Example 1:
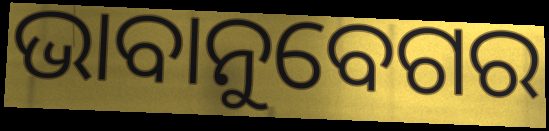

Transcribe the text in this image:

ଭାବାନୁବେଗର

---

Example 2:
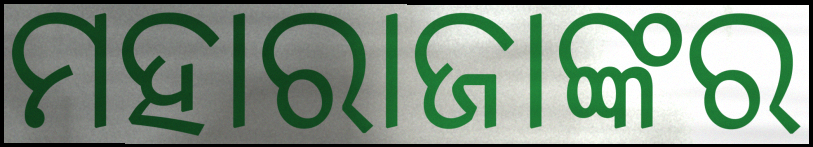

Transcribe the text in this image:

ମହାରାଜାଙ୍କର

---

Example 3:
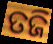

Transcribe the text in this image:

ତଜି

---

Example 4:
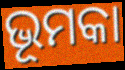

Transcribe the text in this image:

ଭୂମକା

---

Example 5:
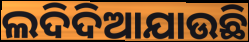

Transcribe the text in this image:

ଲଦିଦିଆଯାଉଛି